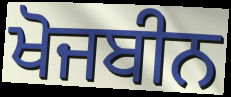
ਖੋਜਬੀਨ